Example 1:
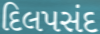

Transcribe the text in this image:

દિલપસંદ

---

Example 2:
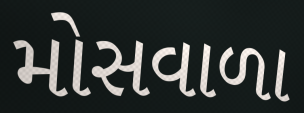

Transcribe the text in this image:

મોસવાળા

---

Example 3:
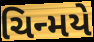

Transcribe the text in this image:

ચિન્મયે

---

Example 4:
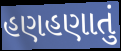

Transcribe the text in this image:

હણહણાતું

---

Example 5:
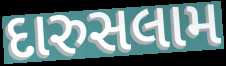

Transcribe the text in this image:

દારુસલામ